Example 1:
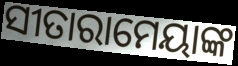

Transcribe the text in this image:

ସୀତାରାମେୟାଙ୍କ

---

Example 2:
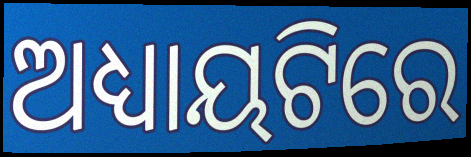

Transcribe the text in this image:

ଅଧ୍ୟାୟଟିରେ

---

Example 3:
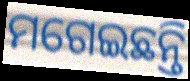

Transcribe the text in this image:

ମଗେଇଛନ୍ତି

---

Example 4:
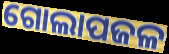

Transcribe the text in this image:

ଗୋଲାପଜଳ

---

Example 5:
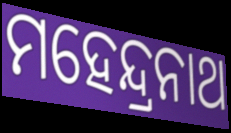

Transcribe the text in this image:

ମହେନ୍ଦ୍ରନାଥ